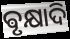
ଵୃକ୍ଷାଦି